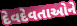
દેવદેવતાઓને